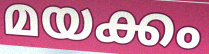
മയക്കം